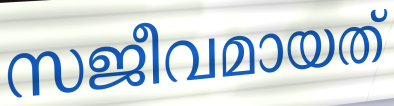
സജീവമായത്